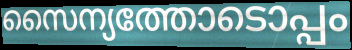
സൈന്യത്തോടൊപ്പം